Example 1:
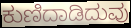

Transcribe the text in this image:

ಕುಣಿದಾಡಿದುವು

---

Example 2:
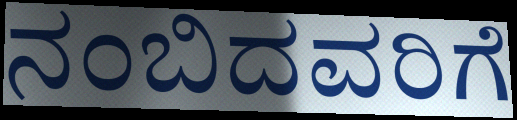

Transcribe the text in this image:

ನಂಬಿದವರಿಗೆ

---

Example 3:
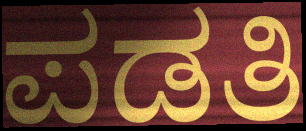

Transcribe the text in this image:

ಪಡತಿ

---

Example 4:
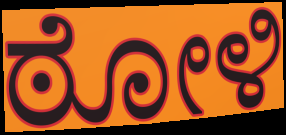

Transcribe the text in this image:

ಠೋಳಿ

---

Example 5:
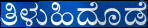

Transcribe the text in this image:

ತಿಳುಹಿದೊಡೆ